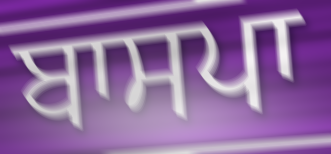
ਬਾਸਪਾ